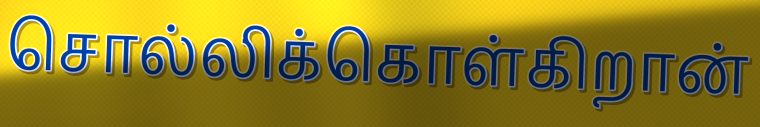
சொல்லிக்கொள்கிறான்